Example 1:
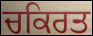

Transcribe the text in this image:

ਚਕਿਰਤ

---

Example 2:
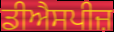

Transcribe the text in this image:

ਡੀਐਸਪੀਜ਼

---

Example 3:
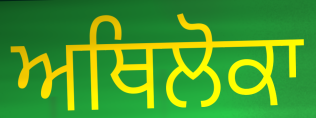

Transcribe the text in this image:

ਅਥਿਲੋਕਾ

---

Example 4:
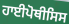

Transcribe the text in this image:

ਹਾਈਪੋਥੀਸਿਸ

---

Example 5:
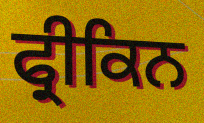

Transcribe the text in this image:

ਫ੍ਰੀਕਿਨ